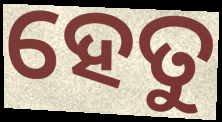
ହେତୁ